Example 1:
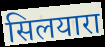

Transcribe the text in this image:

सिलयारा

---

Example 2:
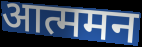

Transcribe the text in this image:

आत्ममन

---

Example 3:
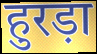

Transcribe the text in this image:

हुरड़ा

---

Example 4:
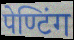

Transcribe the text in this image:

पेण्टिंग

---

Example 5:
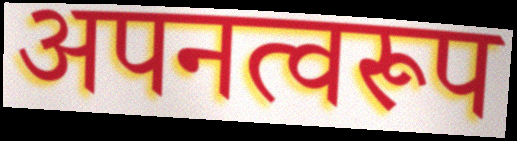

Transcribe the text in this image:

अपनत्वरूप